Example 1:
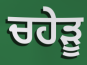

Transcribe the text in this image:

ਚਹੇੜੂ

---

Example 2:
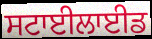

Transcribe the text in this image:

ਸਟਾਈਲਾਈਡ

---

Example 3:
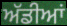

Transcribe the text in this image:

ਅੱਡੀਆਂ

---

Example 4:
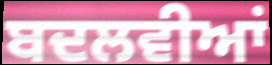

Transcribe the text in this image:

ਬਦਲਵੀਆਂ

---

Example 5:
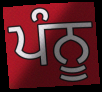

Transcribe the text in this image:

ਪੰਨੂ